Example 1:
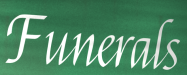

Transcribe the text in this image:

Funerals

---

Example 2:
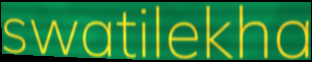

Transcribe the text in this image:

swatilekha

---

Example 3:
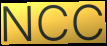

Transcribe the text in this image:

NCC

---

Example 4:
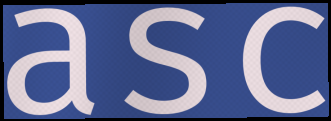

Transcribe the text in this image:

asc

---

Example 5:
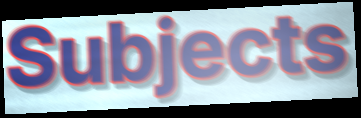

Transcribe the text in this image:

Subjects